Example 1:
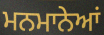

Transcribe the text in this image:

ਮਨਮਾਨੇਆਂ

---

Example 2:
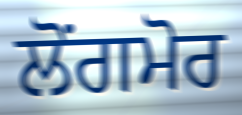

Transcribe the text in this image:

ਲੋਂਗਮੋਰ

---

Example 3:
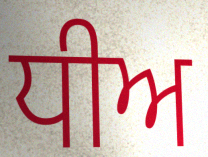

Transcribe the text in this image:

ਧੀਅ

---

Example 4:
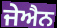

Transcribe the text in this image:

ਜੇਐਨ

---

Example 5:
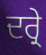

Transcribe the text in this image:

ਦਰ੍ਰੇ